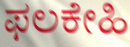
ಫಲಕೇಹಿ